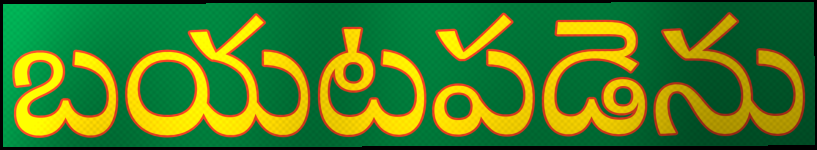
బయటపడెను